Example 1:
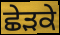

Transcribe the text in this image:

ਛੇੜਕੇ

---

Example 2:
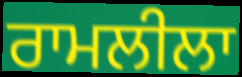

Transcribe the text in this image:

ਰਾਮਲੀਲਾ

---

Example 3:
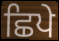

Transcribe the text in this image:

ਛਿਪੇ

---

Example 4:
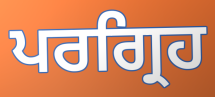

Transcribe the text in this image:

ਪਰਗ੍ਰਿਹ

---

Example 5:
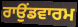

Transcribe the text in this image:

ਰਾਉਂਡਵਾਰਮ